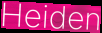
Heiden